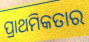
ପ୍ରାଥମିକତାର